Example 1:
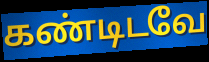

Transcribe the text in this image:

கண்டிடவே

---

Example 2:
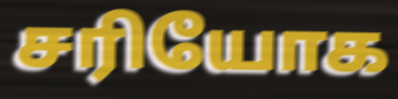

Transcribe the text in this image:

சரியோக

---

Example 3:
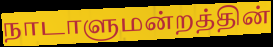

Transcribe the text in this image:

நாடாளுமன்றத்தின்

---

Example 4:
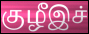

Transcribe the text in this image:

குழீஇச்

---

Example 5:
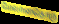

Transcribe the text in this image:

மேலானதொரு